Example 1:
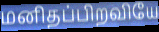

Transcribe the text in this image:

மனிதப்பிறவியே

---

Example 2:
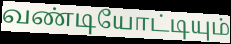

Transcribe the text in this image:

வண்டியோட்டியும்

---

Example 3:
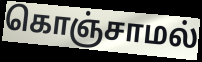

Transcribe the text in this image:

கொஞ்சாமல்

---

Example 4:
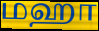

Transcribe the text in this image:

மஹா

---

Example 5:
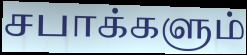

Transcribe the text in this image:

சபாக்களும்